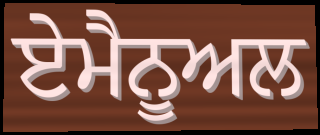
ਏਮੈਨੂਅਲ